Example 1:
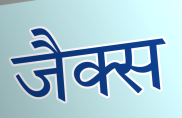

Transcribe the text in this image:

जैक्स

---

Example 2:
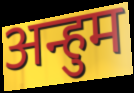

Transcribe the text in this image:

अन्हुम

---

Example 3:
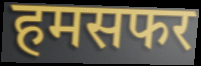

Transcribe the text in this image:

हमसफर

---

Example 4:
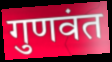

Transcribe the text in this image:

गुणवंत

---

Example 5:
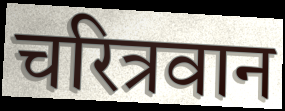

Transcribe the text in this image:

चरित्रवान